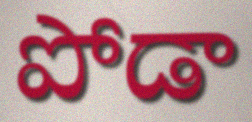
పోడా